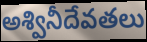
అశ్వినీదేవతలు